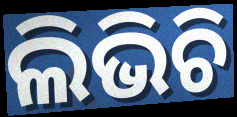
ଲିଭିଚି